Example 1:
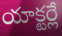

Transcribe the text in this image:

యాక్టర్లే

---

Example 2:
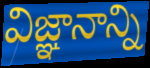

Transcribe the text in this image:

విజ్ఞానాన్ని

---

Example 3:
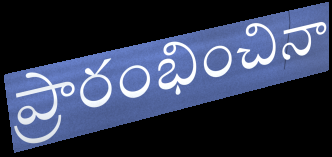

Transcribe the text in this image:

ప్రారంభించినా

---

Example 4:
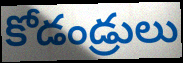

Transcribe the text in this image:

కోడండ్రులు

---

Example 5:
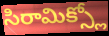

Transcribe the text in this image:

సిరామిక్స్లో